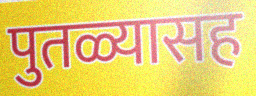
पुतळ्यासह